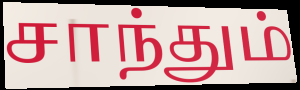
சாந்தும்